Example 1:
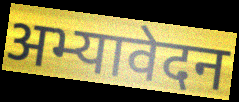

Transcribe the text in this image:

अभ्यावेदन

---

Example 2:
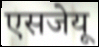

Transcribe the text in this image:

एसजेयू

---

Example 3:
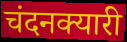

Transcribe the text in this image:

चंदनक्यारी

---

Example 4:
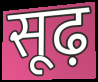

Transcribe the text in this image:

सूढ़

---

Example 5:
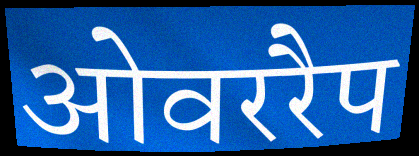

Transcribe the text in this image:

ओवररैप